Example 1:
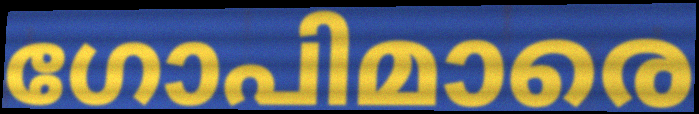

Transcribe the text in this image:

ഗോപിമാരെ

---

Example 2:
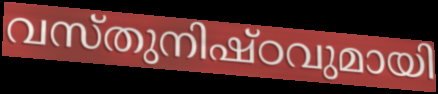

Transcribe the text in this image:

വസ്തുനിഷ്ഠവുമായി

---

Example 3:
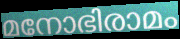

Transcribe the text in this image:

മനോഭിരാമം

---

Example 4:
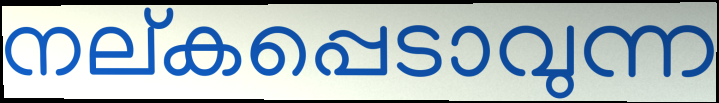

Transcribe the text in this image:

നല്കപ്പെടാവുന്ന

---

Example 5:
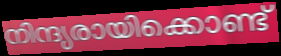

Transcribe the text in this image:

നിന്ദ്യരായിക്കൊണ്ട്